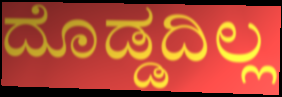
ದೊಡ್ಡದಿಲ್ಲ